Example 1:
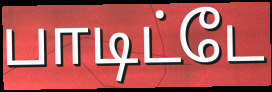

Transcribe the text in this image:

பாடிட்டே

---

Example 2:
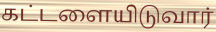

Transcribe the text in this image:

கட்டளையிடுவார்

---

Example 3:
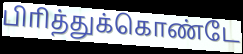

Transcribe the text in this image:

பிரித்துக்கொண்டே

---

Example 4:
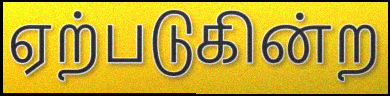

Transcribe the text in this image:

ஏற்படுகின்ற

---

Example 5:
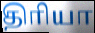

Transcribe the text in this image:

திரியா